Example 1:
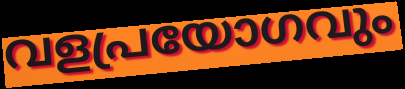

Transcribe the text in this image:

വളപ്രയോഗവും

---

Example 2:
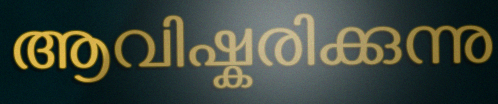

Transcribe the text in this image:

ആവിഷ്കരിക്കുന്നു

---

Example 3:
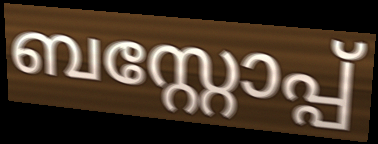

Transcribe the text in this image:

ബസ്റ്റോപ്പ്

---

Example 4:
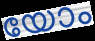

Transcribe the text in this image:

യോം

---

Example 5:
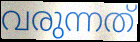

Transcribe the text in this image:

വരുന്നത്